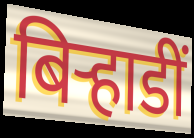
बिर्‍हाडीं